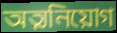
অত্মনিয়োগ